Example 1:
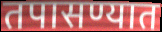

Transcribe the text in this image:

तपासण्यात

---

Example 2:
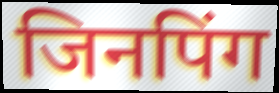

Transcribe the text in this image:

जिनपिंग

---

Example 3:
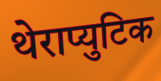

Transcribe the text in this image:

थेराप्युटिक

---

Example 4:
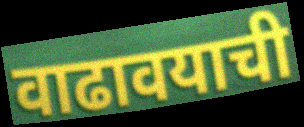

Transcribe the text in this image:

वाढावयाची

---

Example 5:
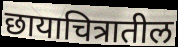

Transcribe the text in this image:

छायाचित्रातील